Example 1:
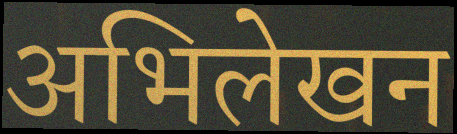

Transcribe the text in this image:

अभिलेखन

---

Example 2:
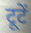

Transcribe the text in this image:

टूटें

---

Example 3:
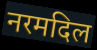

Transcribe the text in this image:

नरमदिल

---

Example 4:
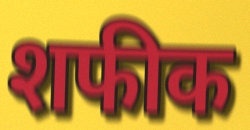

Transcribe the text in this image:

शफीक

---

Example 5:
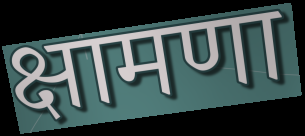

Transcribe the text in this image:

क्षामणा